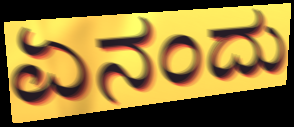
ಏನಂದು